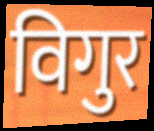
विगुर